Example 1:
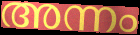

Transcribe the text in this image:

അന്നം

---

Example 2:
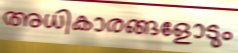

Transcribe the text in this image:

അധികാരങ്ങളോടും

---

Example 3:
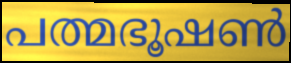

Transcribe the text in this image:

പത്മഭൂഷൺ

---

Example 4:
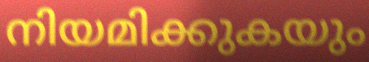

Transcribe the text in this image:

നിയമിക്കുകയും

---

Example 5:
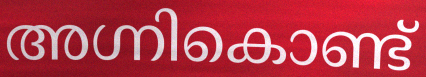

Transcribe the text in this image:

അഗ്നികൊണ്ട്